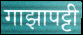
गाझापट्टी